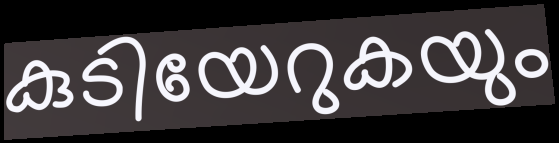
കുടിയേറുകയും